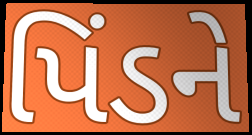
પિંડને